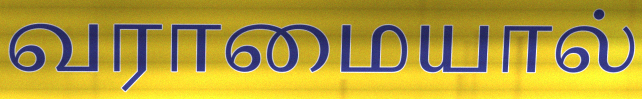
வராமையால்